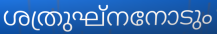
ശത്രുഘ്നനോടും